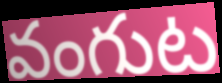
వంగుట